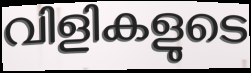
വിളികളുടെ